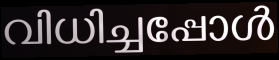
വിധിച്ചപ്പോൾ